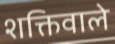
शक्तिवाले